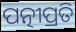
ପତ୍ନୀପ୍ରତି